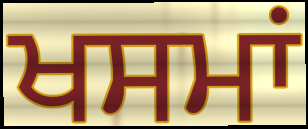
ਖਸਮਾਂ